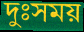
দুঃসময়